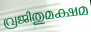
വ്രജിതുമക്ഷമ